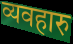
व्यवहारु